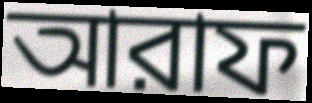
আরাফ